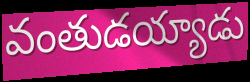
వంతుడయ్యాడు